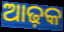
ଆଢ଼କ